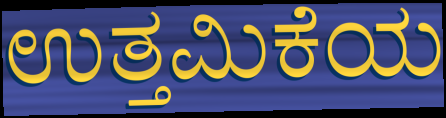
ಉತ್ತಮಿಕೆಯ